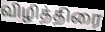
விழித்திரை